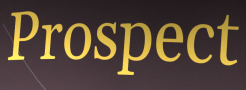
Prospect